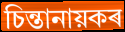
চিন্তানায়কৰ